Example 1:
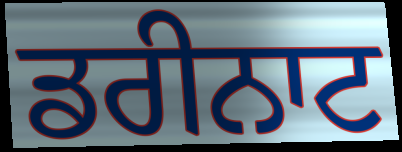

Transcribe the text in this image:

ਡਰੀਨਾਟ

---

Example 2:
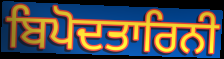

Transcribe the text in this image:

ਬਿਪੋਦਤਾਰਿਨੀ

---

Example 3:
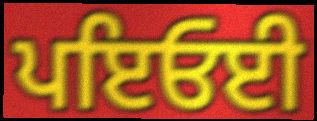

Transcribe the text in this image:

ਪਇਓਈ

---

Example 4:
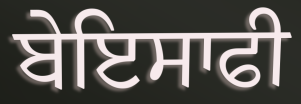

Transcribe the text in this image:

ਬੇਇਸਾਫੀ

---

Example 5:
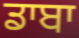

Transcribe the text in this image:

ਡਾਬਾ